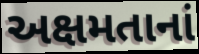
અક્ષમતાનાં